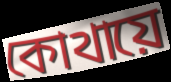
কোথায়ে